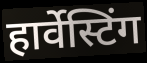
हार्वेस्टिंग